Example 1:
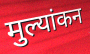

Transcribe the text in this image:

मुल्यांकन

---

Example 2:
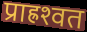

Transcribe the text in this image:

प्राह्रश्वत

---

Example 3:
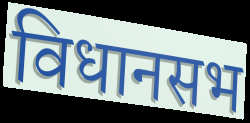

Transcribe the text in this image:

विधानसभ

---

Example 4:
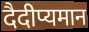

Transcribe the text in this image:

दैदीप्यमान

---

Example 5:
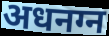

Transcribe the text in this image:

अधनग्न